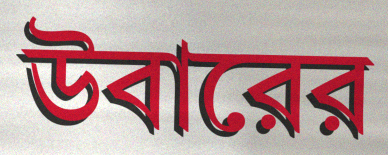
উবারের